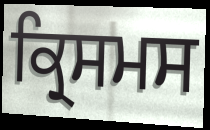
ਕ੍ਰਿਸਮਸ